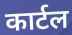
कार्टल